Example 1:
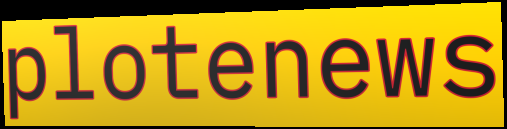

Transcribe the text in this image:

plotenews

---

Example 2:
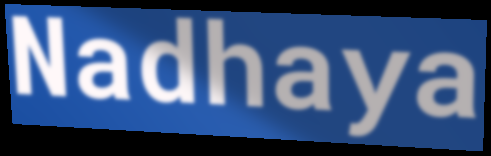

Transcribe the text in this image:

Nadhaya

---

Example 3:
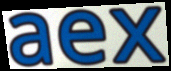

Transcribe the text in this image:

aex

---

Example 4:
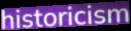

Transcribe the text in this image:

historicism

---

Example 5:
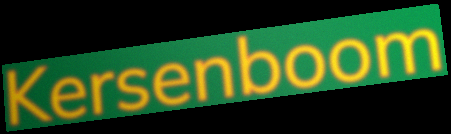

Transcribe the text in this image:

Kersenboom